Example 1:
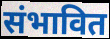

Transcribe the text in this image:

संभावित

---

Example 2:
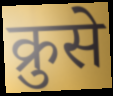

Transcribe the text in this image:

क्रुसे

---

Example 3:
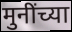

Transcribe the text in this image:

मुनींच्या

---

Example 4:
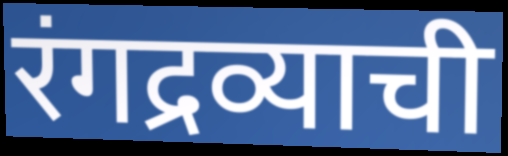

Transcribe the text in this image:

रंगद्रव्याची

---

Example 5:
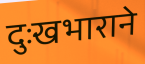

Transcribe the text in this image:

दुःखभाराने